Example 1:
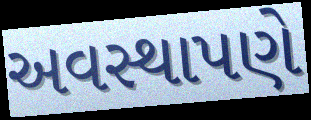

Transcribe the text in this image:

અવસ્થાપણે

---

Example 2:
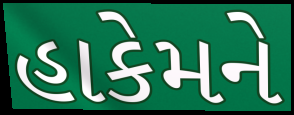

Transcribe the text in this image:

હાકેમને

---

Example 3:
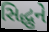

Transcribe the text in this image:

સિદ્ધુને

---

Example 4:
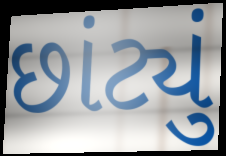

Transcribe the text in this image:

છાંટ્યું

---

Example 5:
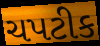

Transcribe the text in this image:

ચપટીક